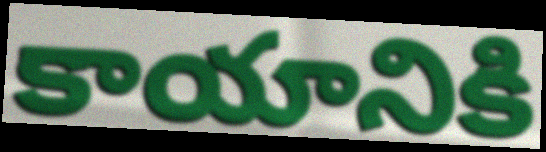
కాయానికి